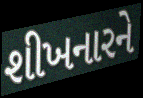
શીખનારને